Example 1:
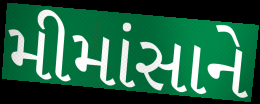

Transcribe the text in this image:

મીમાંસાને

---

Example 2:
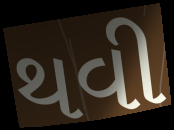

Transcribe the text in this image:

થવી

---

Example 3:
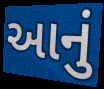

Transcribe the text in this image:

આનું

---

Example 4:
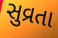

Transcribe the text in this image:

સુવ્રતા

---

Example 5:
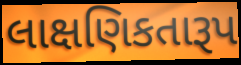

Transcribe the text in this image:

લાક્ષણિકતારૂપ